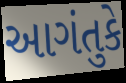
આગંતુકે